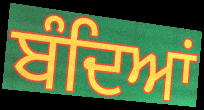
ਬੰਦਿਆਂ